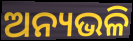
ଅନ୍ୟଭଳି